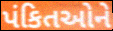
પંકિતઓને